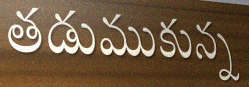
తడుముకున్న